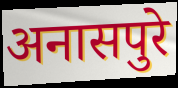
अनासपुरे